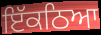
ਇੱਕਠਿਆ